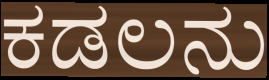
ಕಡಲನು